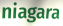
niagara